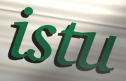
istu